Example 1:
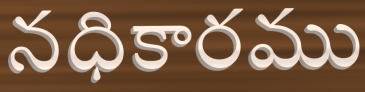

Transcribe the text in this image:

నధికారము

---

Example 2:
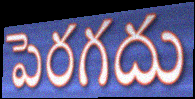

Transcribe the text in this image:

పెరగదు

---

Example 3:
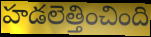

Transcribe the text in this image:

హడలెత్తించింది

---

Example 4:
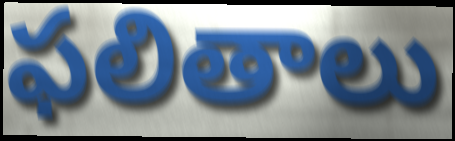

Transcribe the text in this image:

ఫలితాలు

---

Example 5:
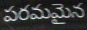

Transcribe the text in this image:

పరమమైన